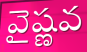
వైష్ణవ